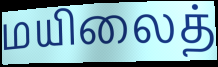
மயிலைத்